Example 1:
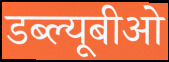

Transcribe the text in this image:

डब्ल्यूबीओ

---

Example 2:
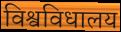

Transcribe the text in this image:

विश्वविधालय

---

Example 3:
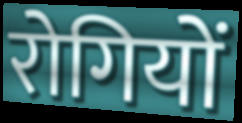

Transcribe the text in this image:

रोगियों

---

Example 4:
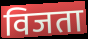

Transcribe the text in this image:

विजता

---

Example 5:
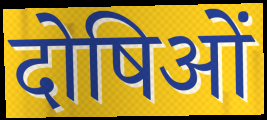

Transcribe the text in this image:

दोषिओं